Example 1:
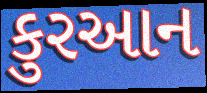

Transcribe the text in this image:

કુરઆન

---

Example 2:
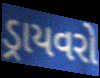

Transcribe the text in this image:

ડ્રાયવરો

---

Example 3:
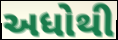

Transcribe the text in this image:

અધોથી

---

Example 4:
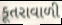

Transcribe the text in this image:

કૂતરાવાળી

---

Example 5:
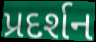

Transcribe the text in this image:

પ્રદર્શન